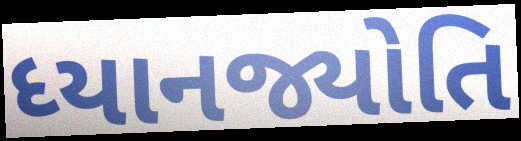
ધ્યાનજ્યોતિ